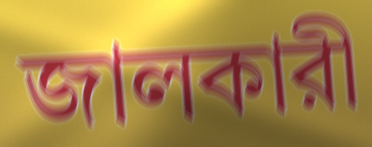
জালকারী